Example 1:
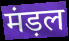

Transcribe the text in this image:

मंड़ल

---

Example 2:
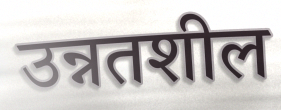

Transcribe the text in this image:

उन्नतशील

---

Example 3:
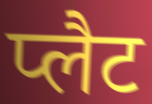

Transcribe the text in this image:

प्लैट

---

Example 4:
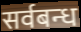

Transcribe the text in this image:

सर्वबन्ध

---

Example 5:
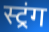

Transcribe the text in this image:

स्ट्रंग